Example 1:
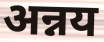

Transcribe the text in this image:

अन्नय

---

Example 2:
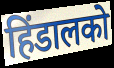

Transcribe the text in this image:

हिंडालको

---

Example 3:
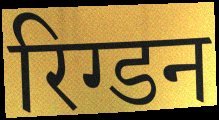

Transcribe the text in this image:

रिग्डन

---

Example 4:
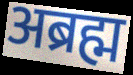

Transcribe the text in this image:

अब्रह्म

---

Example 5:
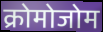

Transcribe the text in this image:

क्रोमोजोम